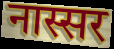
नास्सर